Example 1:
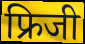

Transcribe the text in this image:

फ्रिजी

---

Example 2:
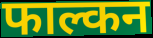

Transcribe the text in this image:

फाल्कन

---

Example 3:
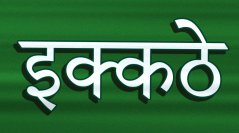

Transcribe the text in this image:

इक्कठे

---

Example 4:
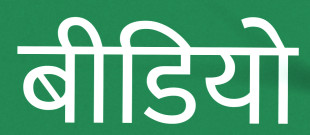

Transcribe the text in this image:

बीडियो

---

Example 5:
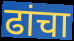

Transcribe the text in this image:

ढांचा